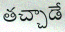
తచ్చాడే